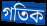
গতিক